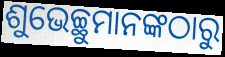
ଶୁଭେଚ୍ଛୁମାନଙ୍କଠାରୁ